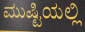
ಮುಷ್ಟಿಯಲ್ಲಿ